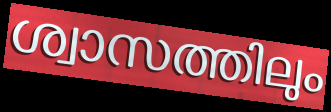
ശ്വാസത്തിലും